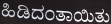
ಹಿಡಿದಂತಾಯಿತು